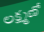
లక్ష్మణో